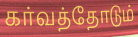
கர்வத்தோடும்